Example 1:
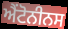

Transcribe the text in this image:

ਐਂਟੋਨੀਨਸ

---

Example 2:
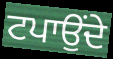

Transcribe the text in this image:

ਟਪਾਉਂਦੇ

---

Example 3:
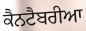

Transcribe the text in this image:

ਕੈਨਟੈਬਰੀਆ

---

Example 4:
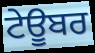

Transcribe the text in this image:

ਟੇਊਬਰ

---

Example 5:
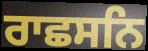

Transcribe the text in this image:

ਰਾਛਸਨਿ